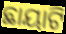
ଛାୟାଟି